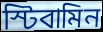
স্টিবামিন